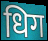
धिग